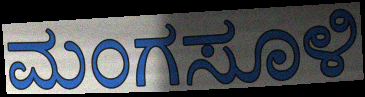
ಮಂಗಸೂಳಿ